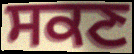
ਸਕਣ